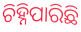
ଚିହ୍ନିପାରିଛି